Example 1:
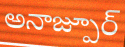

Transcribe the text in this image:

అనాజ్పూర్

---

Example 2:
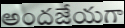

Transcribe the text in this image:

అందజేయగా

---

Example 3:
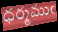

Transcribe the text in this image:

ధర్మముఁ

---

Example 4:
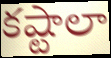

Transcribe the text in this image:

కష్టాలా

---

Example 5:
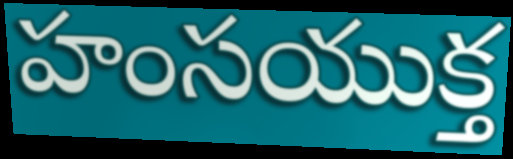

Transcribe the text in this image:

హంసయుక్త